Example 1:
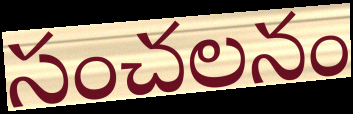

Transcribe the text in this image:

సంచలనం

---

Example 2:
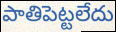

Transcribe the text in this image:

పాతిపెట్టలేదు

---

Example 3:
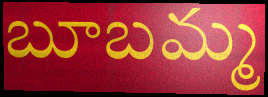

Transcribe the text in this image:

బూబమ్మ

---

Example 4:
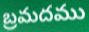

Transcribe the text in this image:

బ్రమదము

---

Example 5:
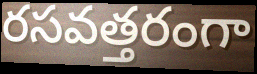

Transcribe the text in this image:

రసవత్తరంగా